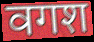
वगश